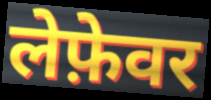
लेफ़ेवर